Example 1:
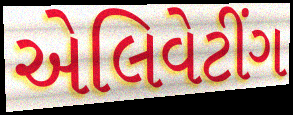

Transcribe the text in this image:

એલિવેટીંગ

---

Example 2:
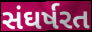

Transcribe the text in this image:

સંઘર્ષરત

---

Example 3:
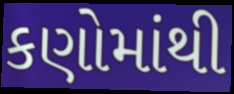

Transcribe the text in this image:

કણોમાંથી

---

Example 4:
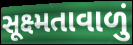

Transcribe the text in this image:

સૂક્ષ્મતાવાળું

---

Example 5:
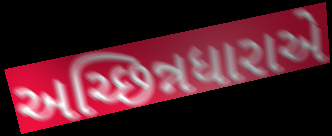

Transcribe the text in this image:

અચ્છિન્નધારાએ